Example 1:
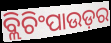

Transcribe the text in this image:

ବ୍ଲିଚିଂପାଉଡ଼ର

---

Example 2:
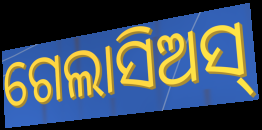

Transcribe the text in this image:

ଗେଲାସିଅସ୍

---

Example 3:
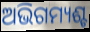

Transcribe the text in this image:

ଅଭିଗମ୍ୟଶ୍ଚ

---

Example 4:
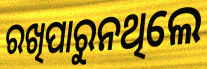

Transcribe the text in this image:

ରଖିପାରୁନଥିଲେ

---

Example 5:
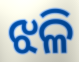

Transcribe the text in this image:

ଝଳି